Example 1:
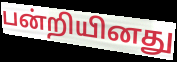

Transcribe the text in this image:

பன்றியினது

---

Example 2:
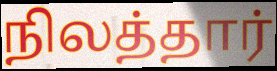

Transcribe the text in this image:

நிலத்தார்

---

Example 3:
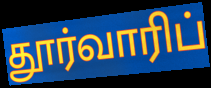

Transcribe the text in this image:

தூர்வாரிப்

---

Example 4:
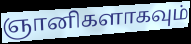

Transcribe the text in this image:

ஞானிகளாகவும்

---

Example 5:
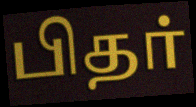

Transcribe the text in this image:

பிதர்